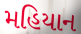
મહિયાન